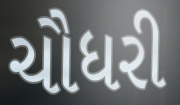
ચૌધરી